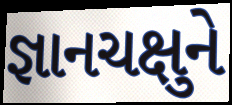
જ્ઞાનચક્ષુને